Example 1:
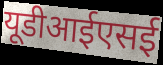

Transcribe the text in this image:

यूडीआईएसई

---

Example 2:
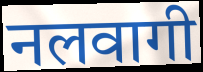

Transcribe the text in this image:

नलवागी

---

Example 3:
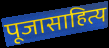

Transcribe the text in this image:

पूजासाहित्य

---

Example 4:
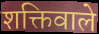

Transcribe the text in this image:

शक्तिवाले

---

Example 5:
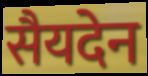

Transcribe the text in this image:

सैयदेन